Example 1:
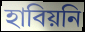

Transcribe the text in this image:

হাবিয়নি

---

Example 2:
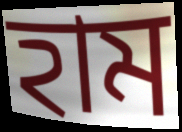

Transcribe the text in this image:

হাম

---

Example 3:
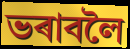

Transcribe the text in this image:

ভৰাবলৈ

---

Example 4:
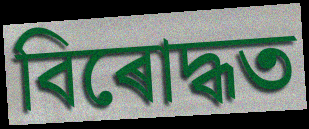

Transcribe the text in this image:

বিৰোদ্ধত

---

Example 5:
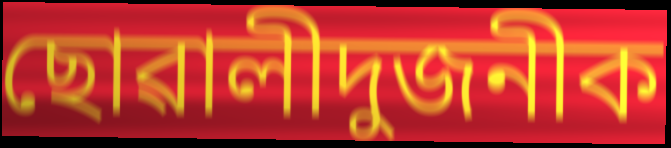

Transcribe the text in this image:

ছোৱালীদুজনীক